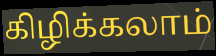
கிழிக்கலாம்